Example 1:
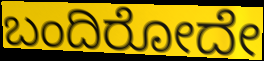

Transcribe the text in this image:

ಬಂದಿರೋದೇ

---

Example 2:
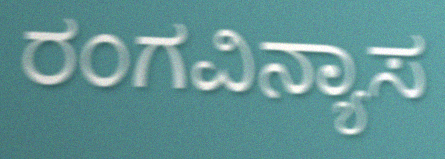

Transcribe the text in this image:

ರಂಗವಿನ್ಯಾಸ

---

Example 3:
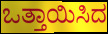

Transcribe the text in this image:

ಒತ್ತಾಯಿಸಿದ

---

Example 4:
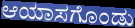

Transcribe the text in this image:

ಆಯಾಸಗೊಂಡು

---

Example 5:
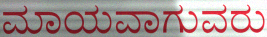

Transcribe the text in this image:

ಮಾಯವಾಗುವರು